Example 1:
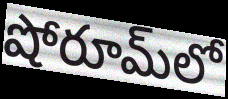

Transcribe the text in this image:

షోరూమ్‌లో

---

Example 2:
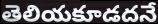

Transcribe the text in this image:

తెలియకూడదనే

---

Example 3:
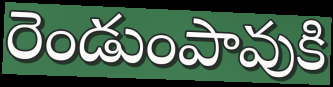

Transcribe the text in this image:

రెండుంపావుకి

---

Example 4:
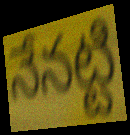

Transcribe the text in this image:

నేనట్టి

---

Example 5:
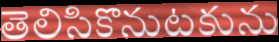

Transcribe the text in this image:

తెలిసికొనుటకును